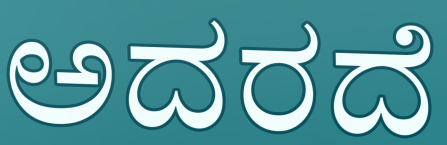
ಅದರದೆ